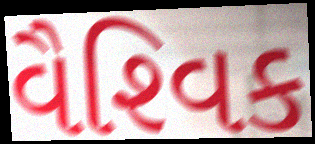
વૈશ્‍વિક